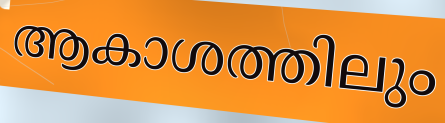
ആകാശത്തിലും